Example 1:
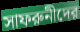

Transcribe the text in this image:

সাফরুনীদের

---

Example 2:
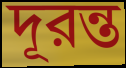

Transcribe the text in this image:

দূরন্ত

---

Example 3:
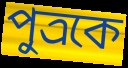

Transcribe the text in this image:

পুত্রকে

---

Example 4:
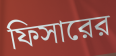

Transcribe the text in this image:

ফিসারের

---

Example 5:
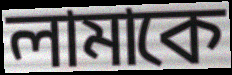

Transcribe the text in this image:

লামাকে